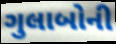
ગુલાબોની